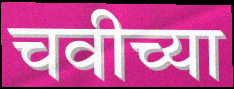
चवीच्या